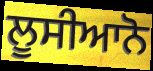
ਲੂਸੀਆਨੋ